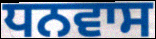
ਧਨਵਾਸ